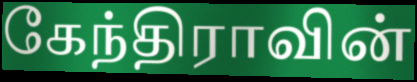
கேந்திராவின்